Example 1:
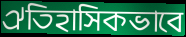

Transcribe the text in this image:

ঐতিহাসিকভাবে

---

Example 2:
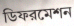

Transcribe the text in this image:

ডিফরমেশন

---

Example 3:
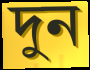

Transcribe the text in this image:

দুন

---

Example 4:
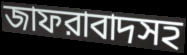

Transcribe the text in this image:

জাফরাবাদসহ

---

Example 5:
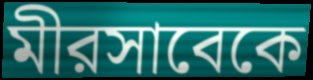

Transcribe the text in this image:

মীরসাবেকে